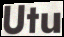
Utu